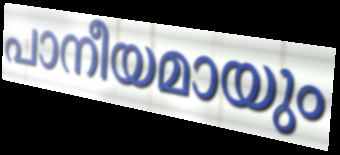
പാനീയമായും